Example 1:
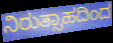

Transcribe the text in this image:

ನಿರುತ್ಸಾಹದಿಂದ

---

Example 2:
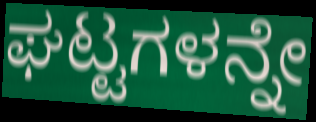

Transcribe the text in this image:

ಘಟ್ಟಗಳನ್ನೇ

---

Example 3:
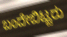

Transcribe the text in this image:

ಬಂದೇಬಿಟ್ಟರು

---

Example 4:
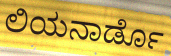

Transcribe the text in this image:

ಲಿಯನಾರ್ಡೊ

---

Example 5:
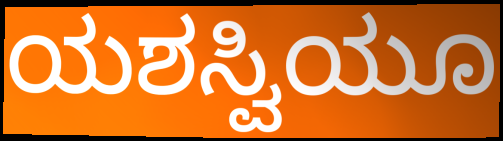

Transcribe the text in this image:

ಯಶಸ್ವಿಯೂ